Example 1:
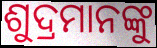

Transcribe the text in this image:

ଶୁଦ୍ରମାନଙ୍କୁ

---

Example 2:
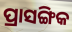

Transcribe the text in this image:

ପ୍ରାସଙ୍ଗିକ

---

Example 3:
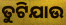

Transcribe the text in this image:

ତୁଟିଯାଉ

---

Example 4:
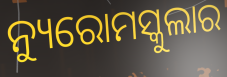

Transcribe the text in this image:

ନ୍ୟୁରୋମସ୍କୁଲାର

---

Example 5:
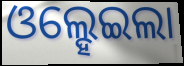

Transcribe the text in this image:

ଓଲ୍ହେଇଲା